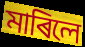
মাৰিলে